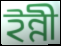
ইন্নী